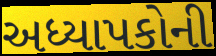
અધ્યાપકોની